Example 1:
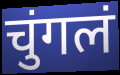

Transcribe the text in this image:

चुंगलं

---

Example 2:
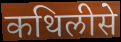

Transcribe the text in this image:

कथिलीसे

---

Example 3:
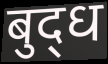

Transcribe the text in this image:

बुद्ध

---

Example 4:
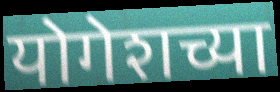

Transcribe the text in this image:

योगेशच्या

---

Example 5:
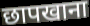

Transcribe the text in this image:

छापखाना